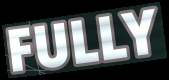
FULLY